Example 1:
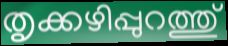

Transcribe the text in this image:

തൃക്കഴിപ്പുറത്തു്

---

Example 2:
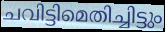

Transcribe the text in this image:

ചവിട്ടിമെതിച്ചിട്ടും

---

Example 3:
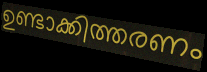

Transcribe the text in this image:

ഉണ്ടാക്കിത്തരണം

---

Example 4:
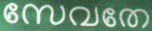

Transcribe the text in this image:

സേവതേ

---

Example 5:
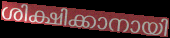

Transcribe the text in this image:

ശിക്ഷിക്കാനായി